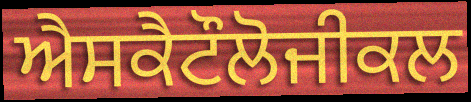
ਐਸਕੈਟੌਲੋਜੀਕਲ